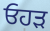
ਓਹੜ